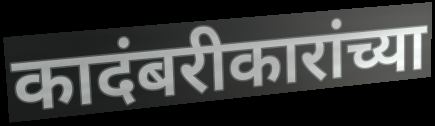
कादंबरीकारांच्या